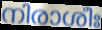
നിരാശീഃ